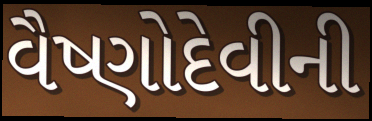
વૈષ્ણોદેવીની